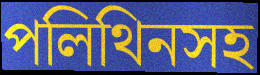
পলিথিনসহ